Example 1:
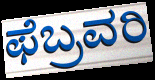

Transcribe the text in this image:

ಫೆಬ್ರವರಿ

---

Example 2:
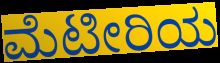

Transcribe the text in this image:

ಮೆಟೀರಿಯ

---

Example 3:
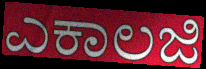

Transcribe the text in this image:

ಎಕಾಲಜಿ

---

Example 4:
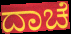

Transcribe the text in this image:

ದಾಚೆ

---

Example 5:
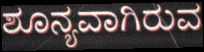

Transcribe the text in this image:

ಶೂನ್ಯವಾಗಿರುವ